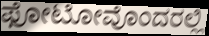
ಫೋಟೋವೊಂದರಲ್ಲಿ